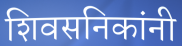
शिवसनिकांनी